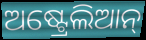
ଅଷ୍ଟ୍ରେଲିଆନ୍